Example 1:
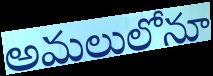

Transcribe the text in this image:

అమలులోనూ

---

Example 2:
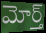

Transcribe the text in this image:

మోర్త్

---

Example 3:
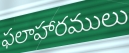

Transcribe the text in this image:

ఫలాహారములు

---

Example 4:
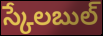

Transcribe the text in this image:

స్కేలబుల్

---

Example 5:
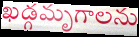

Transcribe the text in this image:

ఖడ్గమృగాలను